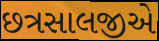
છત્રસાલજીએ